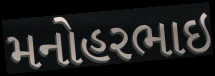
મનોહરભાઇ